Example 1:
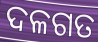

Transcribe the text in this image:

ଦଳଗତ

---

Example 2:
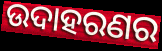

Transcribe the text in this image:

ଉଦାହରଣର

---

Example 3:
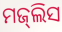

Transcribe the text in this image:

ମଜ୍‌ଲିସ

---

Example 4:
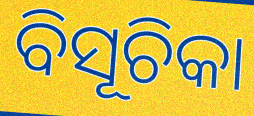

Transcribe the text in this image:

ବିସୂଚିକା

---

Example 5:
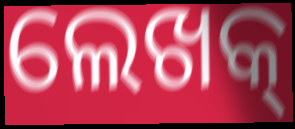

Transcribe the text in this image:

ଲେଖକ୍